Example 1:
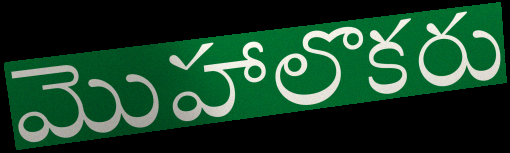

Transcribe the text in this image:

మొహాలొకరు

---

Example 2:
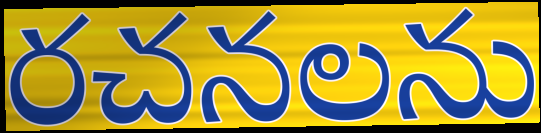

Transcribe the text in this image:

రచనలను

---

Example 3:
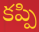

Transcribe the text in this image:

కప్పి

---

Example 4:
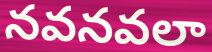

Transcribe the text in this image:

నవనవలా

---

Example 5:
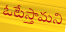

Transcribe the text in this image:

ఓటేస్తామని